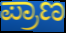
ಪ್ರಾಣ